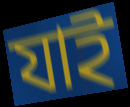
যাই